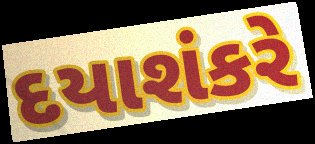
દયાશંકરે